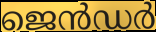
ജെൻഡർ